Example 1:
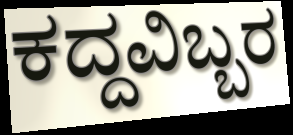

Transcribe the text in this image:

ಕದ್ದವಿಬ್ಬರ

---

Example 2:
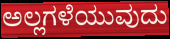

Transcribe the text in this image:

ಅಲ್ಲಗಳೆಯುವುದು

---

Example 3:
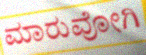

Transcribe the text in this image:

ಮಾರುವೋಗಿ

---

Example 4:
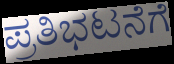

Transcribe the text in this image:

ಪ್ರತಿಭಟನೆಗೆ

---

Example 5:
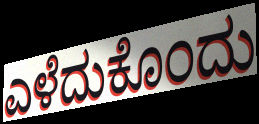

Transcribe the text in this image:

ಎಳೆದುಕೊಂದು